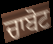
ਚਾਬੋਟ